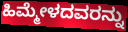
ಹಿಮ್ಮೇಳದವರನ್ನು